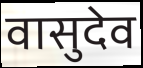
वासुदेव